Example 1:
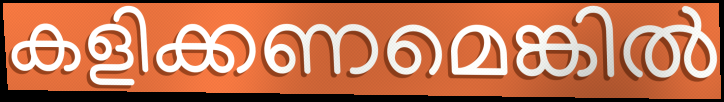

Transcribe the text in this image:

കളിക്കണമെങ്കിൽ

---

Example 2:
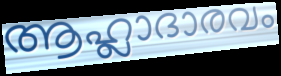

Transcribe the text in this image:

ആഹ്ലാദാരവം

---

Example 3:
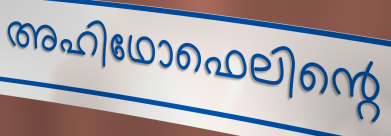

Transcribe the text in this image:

അഹിഥോഫെലിന്റെ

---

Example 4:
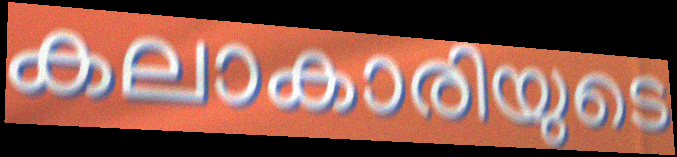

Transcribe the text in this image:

കലാകാരിയുടെ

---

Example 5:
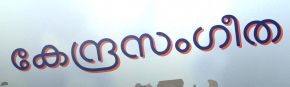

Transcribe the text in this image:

കേന്ദ്രസംഗീത